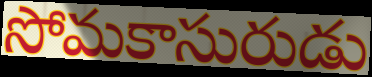
సోమకాసురుడు